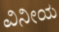
ವಿನೀಯ